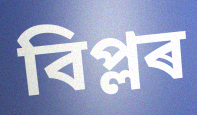
বিপ্লৰ